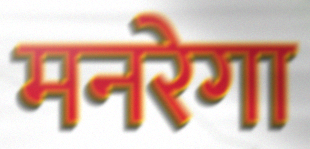
मनरेगा